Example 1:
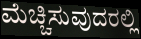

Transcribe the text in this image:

ಮೆಚ್ಚಿಸುವುದರಲ್ಲಿ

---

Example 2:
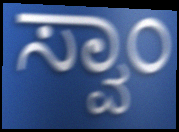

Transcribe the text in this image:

ಸ್ವಾಂ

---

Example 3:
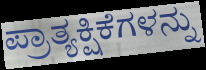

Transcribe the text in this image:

ಪ್ರಾತ್ಯಕ್ಷಿಕೆಗಳನ್ನು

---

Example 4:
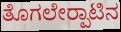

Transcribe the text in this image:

ತೊಗಲೇರ‍್ಪಾಟಿನ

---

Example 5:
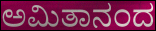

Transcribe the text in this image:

ಅಮಿತಾನಂದ